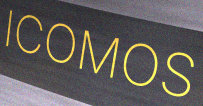
ICOMOS